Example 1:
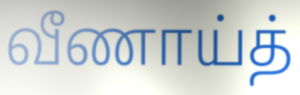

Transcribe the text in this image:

வீணாய்த்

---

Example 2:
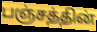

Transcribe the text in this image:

பஞ்சத்தின்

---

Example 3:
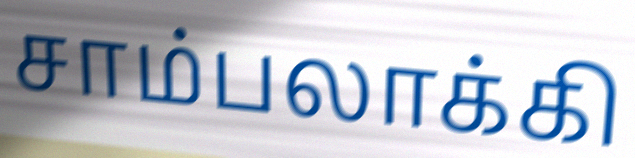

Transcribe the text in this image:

சாம்பலாக்கி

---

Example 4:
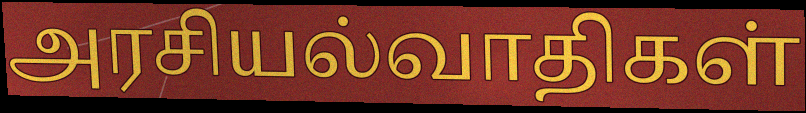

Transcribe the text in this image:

அரசியல்வாதிகள்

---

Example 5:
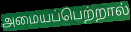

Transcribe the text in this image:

அமையப்பெற்றால்